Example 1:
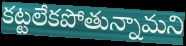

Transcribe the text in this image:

కట్టలేకపోతున్నామని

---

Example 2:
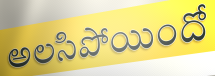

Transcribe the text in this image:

అలసిపోయిందో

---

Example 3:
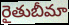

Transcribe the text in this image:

రైతుబీమా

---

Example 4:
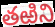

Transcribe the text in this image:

తఱిని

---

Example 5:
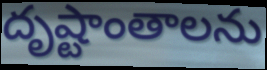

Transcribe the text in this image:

దృష్టాంతాలను